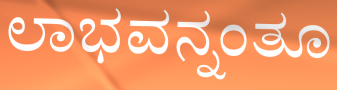
ಲಾಭವನ್ನಂತೂ